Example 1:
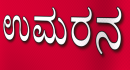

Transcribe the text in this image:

ಉಮರನ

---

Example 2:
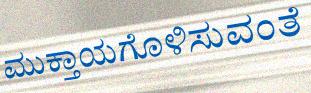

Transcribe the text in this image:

ಮುಕ್ತಾಯಗೊಳಿಸುವಂತೆ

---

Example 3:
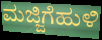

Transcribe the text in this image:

ಮಜ್ಜಿಗೆಹುಳಿ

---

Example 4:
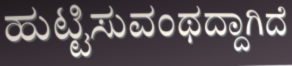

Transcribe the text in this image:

ಹುಟ್ಟಿಸುವಂಥದ್ದಾಗಿದೆ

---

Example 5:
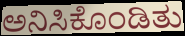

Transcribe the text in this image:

ಅನಿಸಿಕೊಂಡಿತು